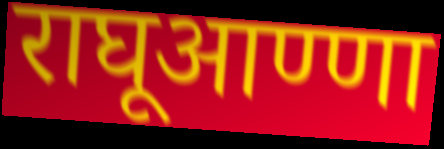
राघूआण्णा